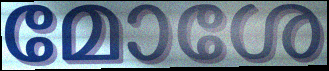
മോശേ